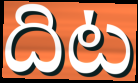
దిట